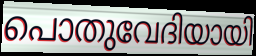
പൊതുവേദിയായി